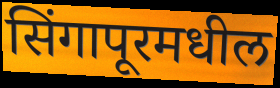
सिंगापूरमधील